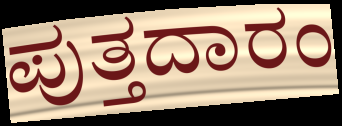
ಪುತ್ತದಾರಂ